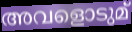
അവളൊടുമ്